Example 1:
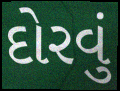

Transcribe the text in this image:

દોરવું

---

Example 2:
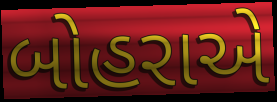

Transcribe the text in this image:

બોહરાએ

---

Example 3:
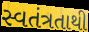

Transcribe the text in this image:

સ્વતંત્રતાથી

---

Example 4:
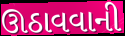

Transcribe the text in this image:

ઊઠાવવાની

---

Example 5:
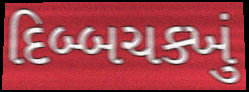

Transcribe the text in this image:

દિબ્બચક્ખું